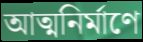
আত্মনির্মাণে